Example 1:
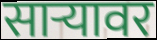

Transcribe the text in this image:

साऱ्यावर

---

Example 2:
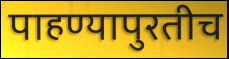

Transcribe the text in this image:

पाहण्यापुरतीच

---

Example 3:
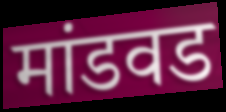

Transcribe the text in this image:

मांडवड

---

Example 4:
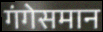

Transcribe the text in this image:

गंगेसमान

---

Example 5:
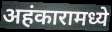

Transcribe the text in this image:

अहंकारामध्ये